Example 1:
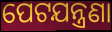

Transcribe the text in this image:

ପେଟଯନ୍ତ୍ରଣା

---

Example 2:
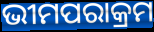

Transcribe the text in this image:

ଭୀମପରାକ୍ରମ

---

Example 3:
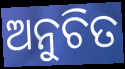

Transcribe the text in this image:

ଅନୁଚିତ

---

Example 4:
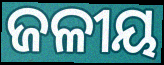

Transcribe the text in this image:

ଜଳୀୟ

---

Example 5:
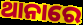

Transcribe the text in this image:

ଥାନାରେ